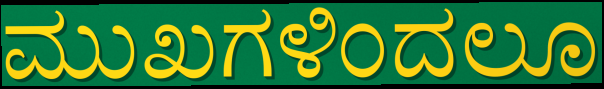
ಮುಖಗಳಿಂದಲೂ